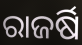
ରାଜର୍ଷି